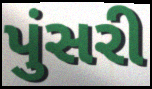
પુંસરી